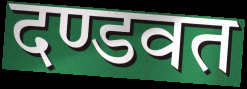
दण्‍डवत